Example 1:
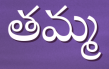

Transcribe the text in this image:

తమ్మ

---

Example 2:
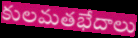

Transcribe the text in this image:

కులమతభేదాలు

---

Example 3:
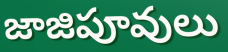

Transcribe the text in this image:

జాజిపూవులు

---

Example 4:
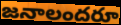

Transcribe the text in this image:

జనాలందరూ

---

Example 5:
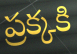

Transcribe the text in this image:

ప్రక్కకి